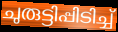
ചുരുട്ടിപ്പിടിച്ച്